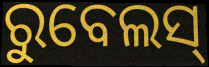
ରୁବେଲସ୍